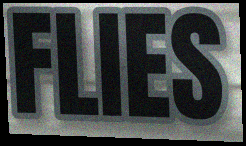
FLIES